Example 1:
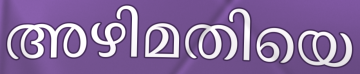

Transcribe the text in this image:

അഴിമതിയെ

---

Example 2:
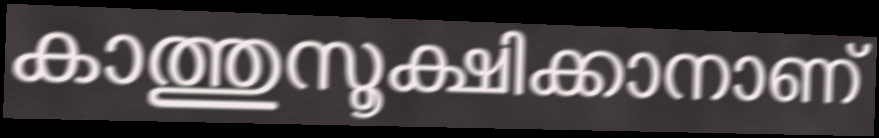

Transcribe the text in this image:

കാത്തുസൂക്ഷിക്കാനാണ്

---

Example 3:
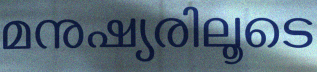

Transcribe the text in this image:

മനുഷ്യരിലൂടെ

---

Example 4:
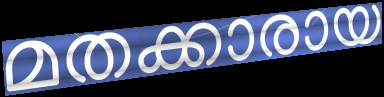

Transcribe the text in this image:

മതക്കാരായ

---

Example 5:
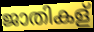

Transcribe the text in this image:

ജാതികള്